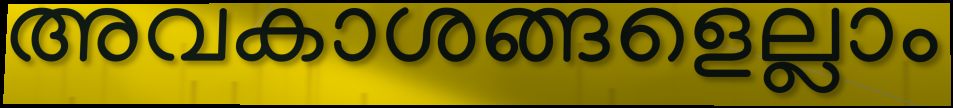
അവകാശങ്ങളെല്ലാം